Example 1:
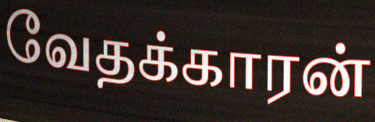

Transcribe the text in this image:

வேதக்காரன்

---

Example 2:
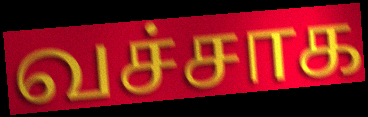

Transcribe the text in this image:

வச்சாக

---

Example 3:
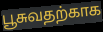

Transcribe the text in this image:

பூசுவதற்காக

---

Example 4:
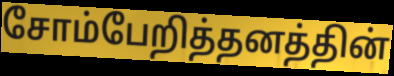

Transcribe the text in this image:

சோம்பேறித்தனத்தின்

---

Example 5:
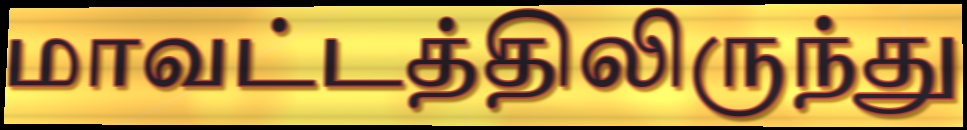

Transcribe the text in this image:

மாவட்டத்திலிருந்து